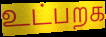
உட்பறக